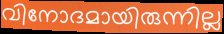
വിനോദമായിരുന്നില്ല